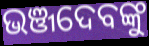
ଭଞ୍ଜଦେବଙ୍କୁ